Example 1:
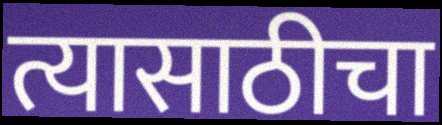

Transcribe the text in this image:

त्यासाठीचा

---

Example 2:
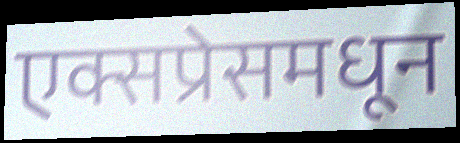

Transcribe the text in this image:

एक्सप्रेसमधून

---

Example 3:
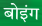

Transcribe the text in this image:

बोइंग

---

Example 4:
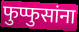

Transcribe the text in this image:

फुप्फुसांना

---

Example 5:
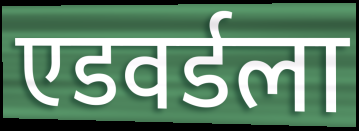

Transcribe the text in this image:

एडवर्डला